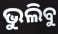
ଭୁଲିବୁ